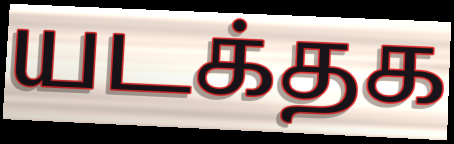
யடக்தக